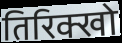
तिरिक्खो